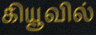
கியூவில்